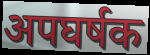
अपघर्षक